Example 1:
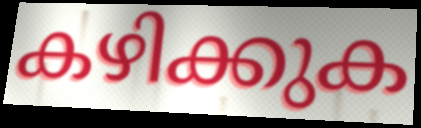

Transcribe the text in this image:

കഴിക്കുക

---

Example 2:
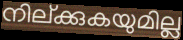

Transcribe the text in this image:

നില്ക്കുകയുമില്ല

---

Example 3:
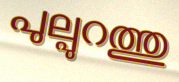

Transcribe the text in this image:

പുല്പുറത്തു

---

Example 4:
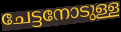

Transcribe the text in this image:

ചേട്ടനോടുള്ള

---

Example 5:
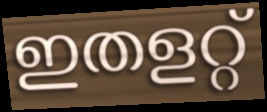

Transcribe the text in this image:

ഇതളറ്റ്